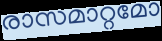
രാസമാറ്റമോ